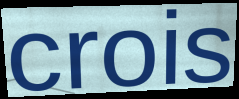
crois